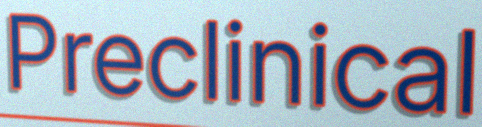
Preclinical